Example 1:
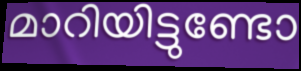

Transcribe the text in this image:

മാറിയിട്ടുണ്ടോ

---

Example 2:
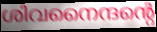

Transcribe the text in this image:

ശിവനൈന്ദന്റെ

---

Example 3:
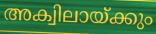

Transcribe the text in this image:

അക്വിലായ്ക്കും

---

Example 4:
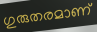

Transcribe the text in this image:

ഗുരുതരമാണ്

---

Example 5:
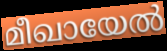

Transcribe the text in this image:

മീഖായേൽ